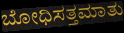
ಬೋಧಿಸತ್ತಮಾತು